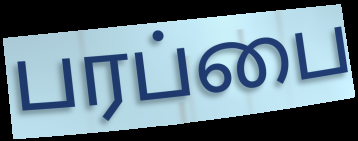
பரப்பை